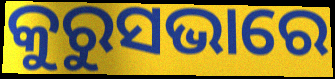
କୁରୁସଭାରେ